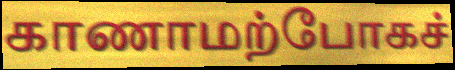
காணாமற்போகச்